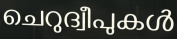
ചെറുദ്വീപുകൾ